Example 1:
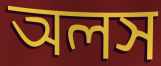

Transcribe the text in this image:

অলস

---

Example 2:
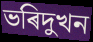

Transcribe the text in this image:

ভৰিদুখন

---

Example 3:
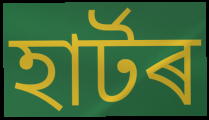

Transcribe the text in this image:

হাৰ্টৰ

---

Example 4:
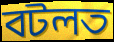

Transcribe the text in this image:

বটলত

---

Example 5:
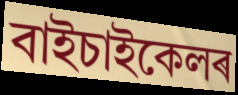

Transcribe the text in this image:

বাইচাইকেলৰ